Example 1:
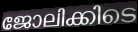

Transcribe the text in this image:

ജോലിക്കിടെ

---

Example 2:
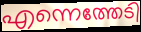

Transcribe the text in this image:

എന്നെത്തേടി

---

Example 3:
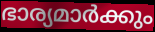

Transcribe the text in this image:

ഭാര്യമാർക്കും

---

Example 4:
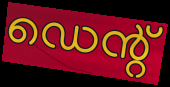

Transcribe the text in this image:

ഡെന്റ്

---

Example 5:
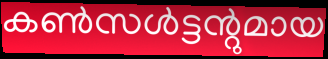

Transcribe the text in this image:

കൺസൾട്ടന്റുമായ